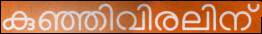
കുഞ്ഞിവിരലിന്